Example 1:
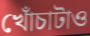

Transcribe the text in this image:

খোঁচাটাও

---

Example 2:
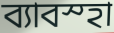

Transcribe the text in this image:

ব্যাবস্হা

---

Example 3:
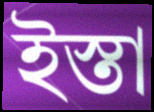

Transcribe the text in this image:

ইস্তা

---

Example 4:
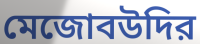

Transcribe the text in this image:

মেজোবউদির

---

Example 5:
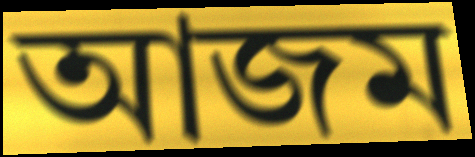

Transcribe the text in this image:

আজম